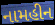
નામહીન